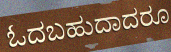
ಓದಬಹುದಾದರೂ